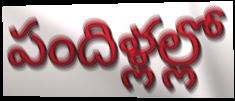
పందిళ్లల్లో